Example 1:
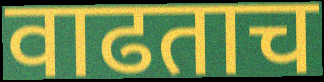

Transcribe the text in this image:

वाढताच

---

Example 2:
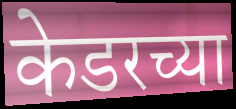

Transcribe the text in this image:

केडरच्या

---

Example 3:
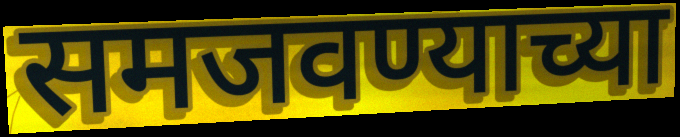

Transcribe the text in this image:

समजवण्याच्या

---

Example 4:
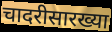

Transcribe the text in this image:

चादरीसारख्या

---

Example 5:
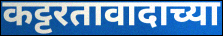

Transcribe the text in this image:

कट्टरतावादाच्या